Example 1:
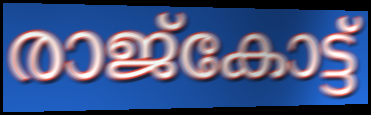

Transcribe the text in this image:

രാജ്കോട്ട്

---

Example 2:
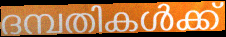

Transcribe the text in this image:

ദമ്പതികൾക്ക്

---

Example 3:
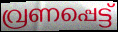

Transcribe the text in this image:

വ്രണപ്പെട്ട്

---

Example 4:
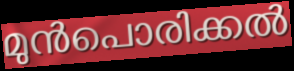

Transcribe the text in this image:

മുൻപൊരിക്കൽ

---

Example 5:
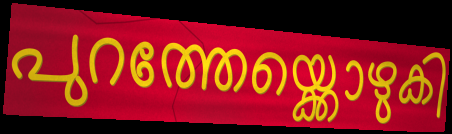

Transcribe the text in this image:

പുറത്തേയ്ക്കൊഴുകി